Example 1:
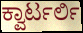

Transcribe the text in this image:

ಕ್ವಾರ್ಟರ್ಲಿ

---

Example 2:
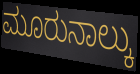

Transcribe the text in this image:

ಮೂರುನಾಲ್ಕು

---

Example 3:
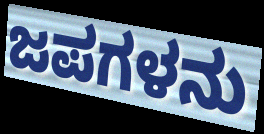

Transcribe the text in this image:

ಜಪಗಳನು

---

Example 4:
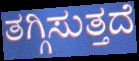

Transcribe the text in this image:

ತಗ್ಗಿಸುತ್ತದೆ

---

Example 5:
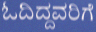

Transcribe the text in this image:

ಓದಿದ್ದವರಿಗೆ